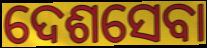
ଦେଶସେବା